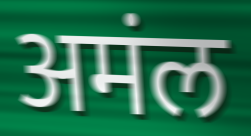
अमंल